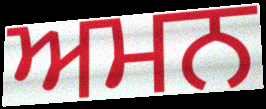
ਅਮਨ